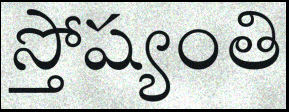
స్తోష్యంతి